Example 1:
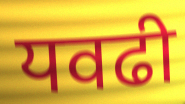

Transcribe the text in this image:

यवढी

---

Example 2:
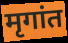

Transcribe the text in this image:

मृगांत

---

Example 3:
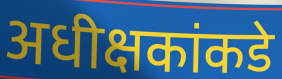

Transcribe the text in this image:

अधीक्षकांकडे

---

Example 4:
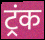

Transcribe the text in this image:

ट्रंक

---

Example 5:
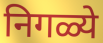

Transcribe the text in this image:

निगळ्ये